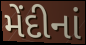
મેંદીનાં